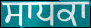
ਸਾਧਕਾ